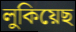
লুকিয়েছ